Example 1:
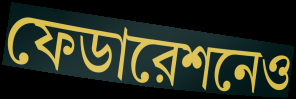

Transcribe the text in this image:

ফেডারেশনেও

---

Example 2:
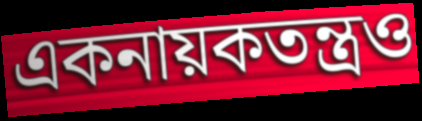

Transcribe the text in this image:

একনায়কতন্ত্রও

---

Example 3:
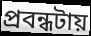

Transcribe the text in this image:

প্রবন্ধটায়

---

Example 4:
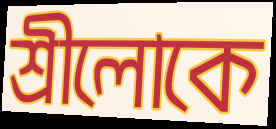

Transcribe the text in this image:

শ্রীলোকে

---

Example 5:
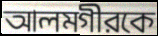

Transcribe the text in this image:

আলমগীরকে